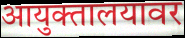
आयुक्तालयावर